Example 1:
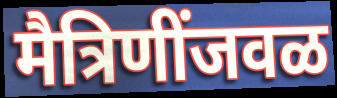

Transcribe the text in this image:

मैत्रिणींजवळ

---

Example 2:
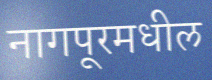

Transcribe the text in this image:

नागपूरमधील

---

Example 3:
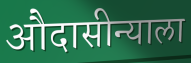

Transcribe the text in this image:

औदासीन्याला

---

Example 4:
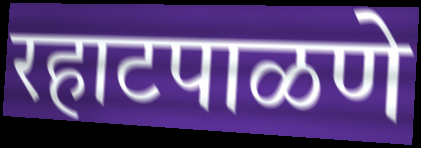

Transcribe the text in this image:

रहाटपाळणे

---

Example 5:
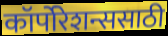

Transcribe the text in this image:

कॉर्पोरेशन्ससाठी